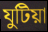
যুটিয়া